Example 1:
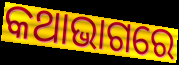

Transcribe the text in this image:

କଥାଭାଗରେ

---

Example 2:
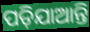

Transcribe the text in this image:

ପଡ଼ିଯାଆନ୍ତି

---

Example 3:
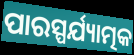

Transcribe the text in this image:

ପାରସ୍ପର୍ଯ୍ୟାତ୍ମକ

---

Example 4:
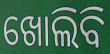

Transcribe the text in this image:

ଖୋଲିବି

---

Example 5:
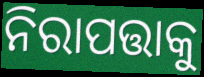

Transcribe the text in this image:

ନିରାପତ୍ତାକୁ